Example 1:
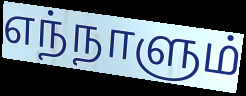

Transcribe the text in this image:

எந்நாளும்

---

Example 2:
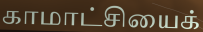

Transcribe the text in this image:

காமாட்சியைக்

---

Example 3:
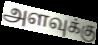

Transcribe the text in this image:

அளவுக்கு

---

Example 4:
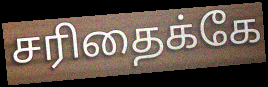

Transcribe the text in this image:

சரிதைக்கே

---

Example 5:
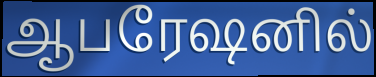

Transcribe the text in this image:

ஆபரேஷனில்